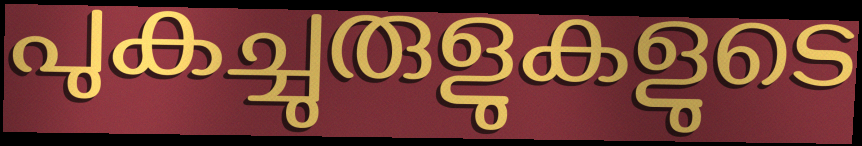
പുകച്ചുരുളുകളുടെ